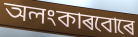
অলংকাৰবোৰে